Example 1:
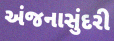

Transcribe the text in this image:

અંજનાસુંદરી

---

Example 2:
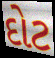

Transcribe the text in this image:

દોટ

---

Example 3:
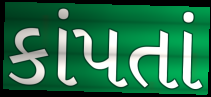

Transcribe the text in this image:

કાંપતાં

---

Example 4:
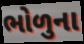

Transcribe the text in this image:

ભોળુના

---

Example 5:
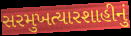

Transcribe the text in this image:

સરમુખત્યારશાહીનું